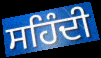
ਸਹਿੰਦੀ